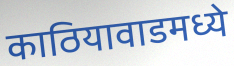
काठियावाडमध्ये